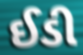
ઈડી